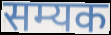
सम्यक